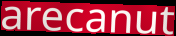
arecanut